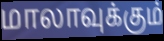
மாலாவுக்கும்